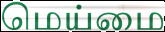
மெய்மை